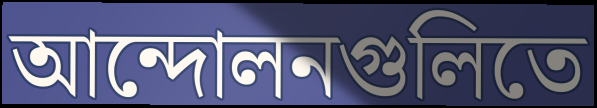
আন্দোলনগুলিতে